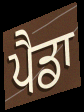
ਪੈਡਾ